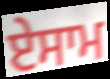
ਏਸਾਮ